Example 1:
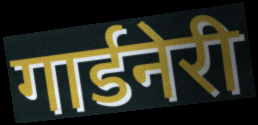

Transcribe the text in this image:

गार्डनेरी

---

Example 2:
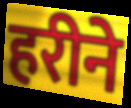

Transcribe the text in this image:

हरीने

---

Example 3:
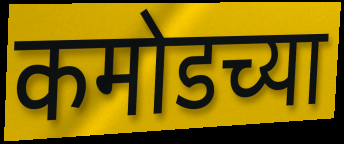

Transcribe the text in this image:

कमोडच्या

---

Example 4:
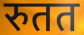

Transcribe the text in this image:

रुतत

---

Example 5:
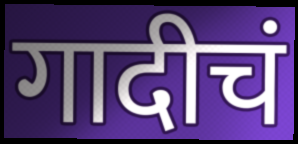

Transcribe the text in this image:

गादीचं